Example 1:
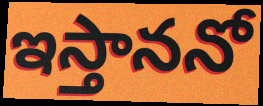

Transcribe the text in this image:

ఇస్తాననో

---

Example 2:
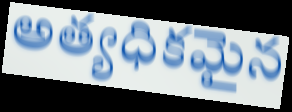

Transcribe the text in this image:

అత్యధికమైన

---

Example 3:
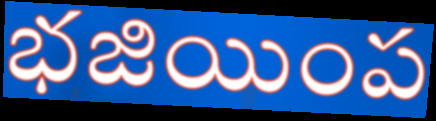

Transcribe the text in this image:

భజియింప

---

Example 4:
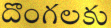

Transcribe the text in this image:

దొంగలకు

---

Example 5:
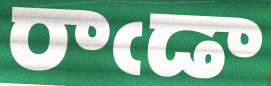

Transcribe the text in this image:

రాఁడా